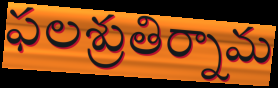
ఫలశ్రుతిర్నామ